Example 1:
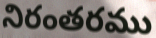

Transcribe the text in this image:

నిరంతరము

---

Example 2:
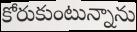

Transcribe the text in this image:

కోరుకుంటున్నాను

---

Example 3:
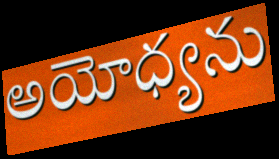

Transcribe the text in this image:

అయోధ్యను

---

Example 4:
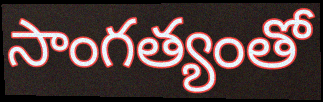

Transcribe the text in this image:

సాంగత్యంతో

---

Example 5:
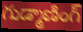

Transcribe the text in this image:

గుడ్మాణింగ్